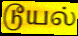
டூயல்